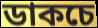
ডাকচে